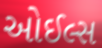
ઓઈલ્સ